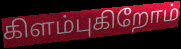
கிளம்புகிறோம்